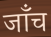
जाँच